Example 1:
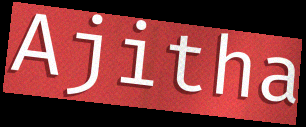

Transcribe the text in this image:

Ajitha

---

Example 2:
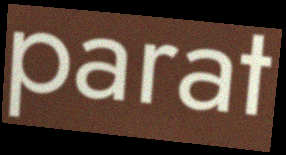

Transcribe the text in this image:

parat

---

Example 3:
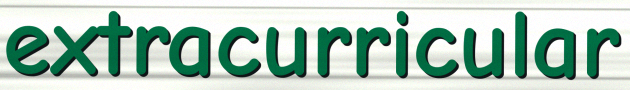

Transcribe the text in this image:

extracurricular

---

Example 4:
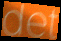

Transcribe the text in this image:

det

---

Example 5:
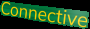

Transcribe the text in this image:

Connective